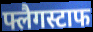
फ्लैगस्टाफ